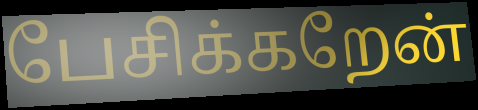
பேசிக்கறேன்